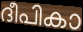
ദീപികാ